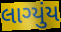
લાગ્યુંય